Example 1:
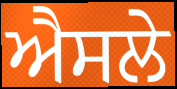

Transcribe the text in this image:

ਐਸਲੇ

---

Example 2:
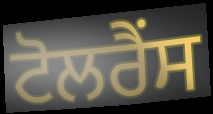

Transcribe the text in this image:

ਟੋਲਰੈਂਸ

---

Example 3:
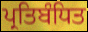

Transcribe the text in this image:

ਪ੍ਰਤਿਬੰਧਿਤ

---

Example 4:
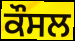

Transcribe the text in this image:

ਕੌਸਲ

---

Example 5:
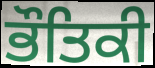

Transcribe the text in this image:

ਭੌਤਿਕੀ